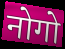
नोगो